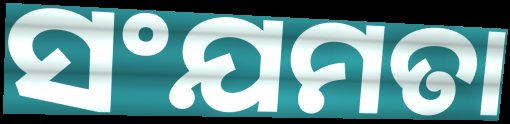
ସଂଯମତା